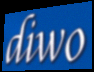
diwo